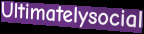
Ultimatelysocial